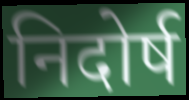
निदोर्ष